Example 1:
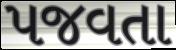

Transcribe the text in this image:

પજવતા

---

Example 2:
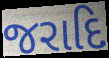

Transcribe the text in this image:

જરાદિ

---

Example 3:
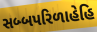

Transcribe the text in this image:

સબ્બપરિળાહેહિ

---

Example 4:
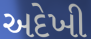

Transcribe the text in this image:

અદેખી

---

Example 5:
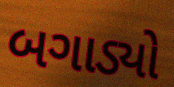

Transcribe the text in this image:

બગાડ્યો